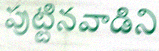
పుట్టినవాడిని